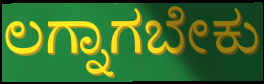
ಲಗ್ನಾಗಬೇಕು